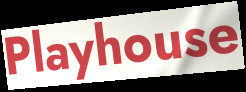
Playhouse